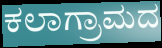
ಕಲಾಗ್ರಾಮದ